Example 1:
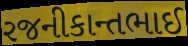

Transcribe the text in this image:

રજનીકાન્તભાઈ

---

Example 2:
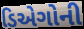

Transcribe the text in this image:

ડિએગોની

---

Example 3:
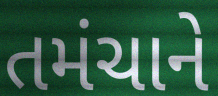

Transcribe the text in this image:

તમંચાને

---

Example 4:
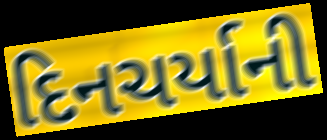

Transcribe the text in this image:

દિનચર્યાની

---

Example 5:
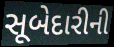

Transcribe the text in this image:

સૂબેદારીની